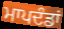
ਮਾਪਦੰਡਾਂ